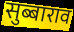
सुब्बाराव